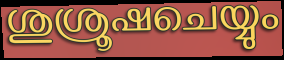
ശുശ്രൂഷചെയ്യും